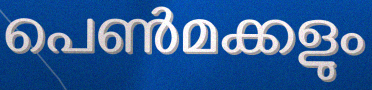
പെൺമക്കളും